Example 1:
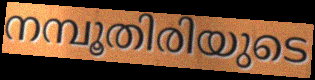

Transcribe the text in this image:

നമ്പൂതിരിയുടെ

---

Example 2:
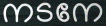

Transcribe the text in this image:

നടനേ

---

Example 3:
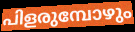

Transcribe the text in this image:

പിളരുമ്പോഴും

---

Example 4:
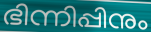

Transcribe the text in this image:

ഭിന്നിപ്പിനും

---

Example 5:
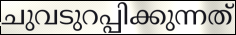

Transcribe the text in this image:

ചുവടുറപ്പിക്കുന്നത്